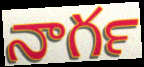
నాగర్‍